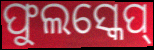
ଫୁଲସ୍କେପ୍